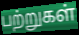
பற்றுகள்